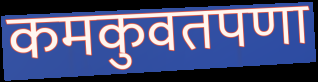
कमकुवतपणा